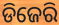
ଡିଜେରି